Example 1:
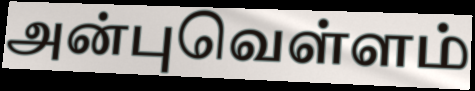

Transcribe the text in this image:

அன்புவெள்ளம்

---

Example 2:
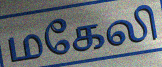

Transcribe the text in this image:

மகேலி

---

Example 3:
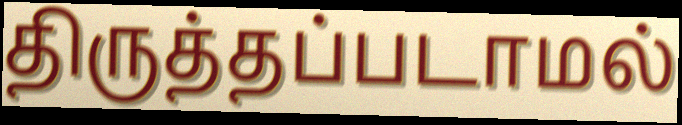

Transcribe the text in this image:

திருத்தப்படாமல்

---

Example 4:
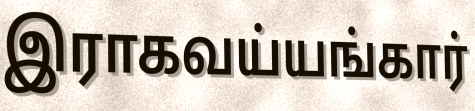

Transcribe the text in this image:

இராகவய்யங்கார்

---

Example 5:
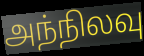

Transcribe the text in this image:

அந்நிலவு